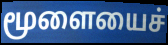
மூளையைச்